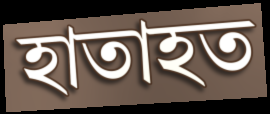
হাতাহত